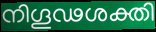
നിഗൂഢശക്തി